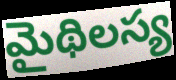
మైథిలస్య